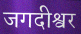
जगदीश्वर